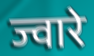
ज्वारे